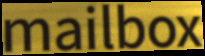
mailbox